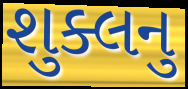
શુક્લનુ